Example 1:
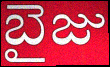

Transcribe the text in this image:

బైజు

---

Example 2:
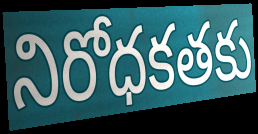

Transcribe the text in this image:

నిరోధకతకు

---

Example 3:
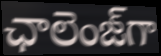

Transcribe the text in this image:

ఛాలెంజ్‌గా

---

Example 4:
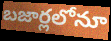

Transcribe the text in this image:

బజార్లలోనూ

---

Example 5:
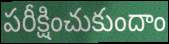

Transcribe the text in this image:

పరీక్షించుకుందాం